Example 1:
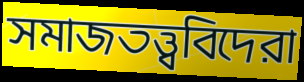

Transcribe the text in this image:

সমাজতত্ত্ববিদেরা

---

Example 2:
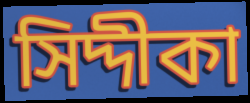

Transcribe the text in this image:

সিদ্দীকা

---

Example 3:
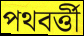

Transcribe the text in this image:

পথবর্ত্তী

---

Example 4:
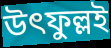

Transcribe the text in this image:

উৎফুল্লই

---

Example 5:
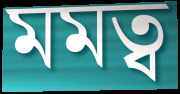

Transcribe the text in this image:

মমত্ব